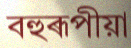
বহুৰূপীয়া